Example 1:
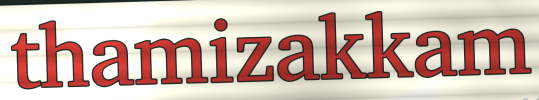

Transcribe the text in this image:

thamizakkam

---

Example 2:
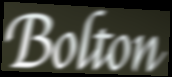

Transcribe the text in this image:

Bolton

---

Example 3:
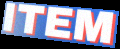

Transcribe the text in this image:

ITEM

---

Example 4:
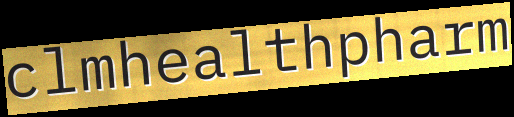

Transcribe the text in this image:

clmhealthpharm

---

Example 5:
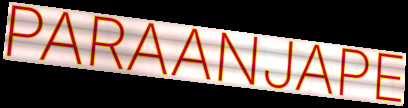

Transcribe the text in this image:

PARAANJAPE